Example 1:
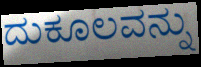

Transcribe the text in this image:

ದುಕೂಲವನ್ನು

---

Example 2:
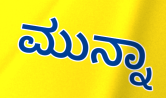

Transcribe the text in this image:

ಮುನ್ನಾ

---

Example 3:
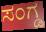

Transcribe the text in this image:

ಸಂಗ್ಡ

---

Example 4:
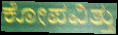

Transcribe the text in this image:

ಕೋಪವಿತ್ತು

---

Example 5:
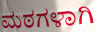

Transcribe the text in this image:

ಮಠಗಳಾಗಿ